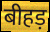
बीहड़